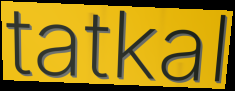
tatkal